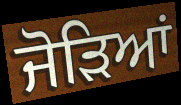
ਜੋੜਿਆਂ